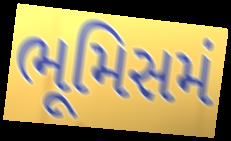
ભૂમિસમં